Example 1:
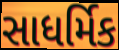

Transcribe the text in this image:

સાધર્મિક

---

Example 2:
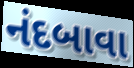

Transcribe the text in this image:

નંદબાવા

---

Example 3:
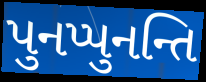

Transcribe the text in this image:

પુનપ્પુનન્તિ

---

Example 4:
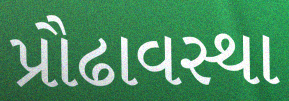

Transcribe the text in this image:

પ્રૌઢાવસ્થા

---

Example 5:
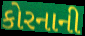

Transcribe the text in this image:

કોરનાની